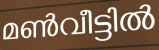
മൺവീട്ടിൽ